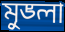
মুঙ্লা